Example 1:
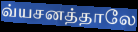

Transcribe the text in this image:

வ்யசனத்தாலே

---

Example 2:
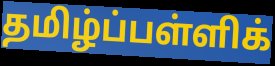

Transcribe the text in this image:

தமிழ்ப்பள்ளிக்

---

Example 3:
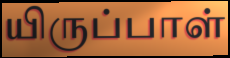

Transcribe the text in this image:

யிருப்பாள்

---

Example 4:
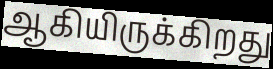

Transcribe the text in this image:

ஆகியிருக்கிறது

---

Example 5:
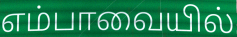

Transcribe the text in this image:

எம்பாவையில்